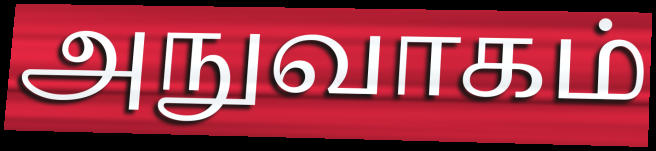
அநுவாகம்